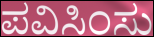
ಪವಿಸಿಂಸು